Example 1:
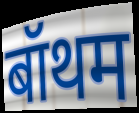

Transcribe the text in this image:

बॉथम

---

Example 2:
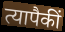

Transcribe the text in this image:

त्यापैकीं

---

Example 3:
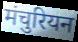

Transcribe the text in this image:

मंचुरियन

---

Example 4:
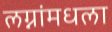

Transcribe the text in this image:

लग्नांमधला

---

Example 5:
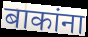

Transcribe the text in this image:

बाकांना